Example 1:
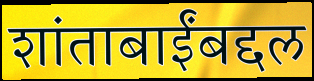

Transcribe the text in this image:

शांताबाईंबद्दल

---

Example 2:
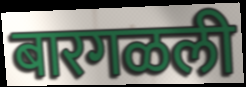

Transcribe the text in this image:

बारगळली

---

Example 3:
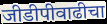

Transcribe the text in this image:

जीडीपीवाढीचा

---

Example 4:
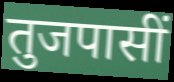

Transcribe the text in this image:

तुजपासीं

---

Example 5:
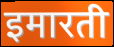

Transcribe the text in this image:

इमारती